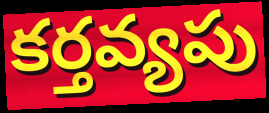
కర్తవ్యపు